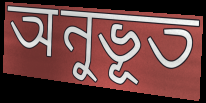
অনুভূত